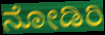
ನೋಡಿರಿ